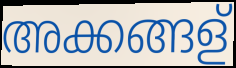
അക്കങ്ങള്